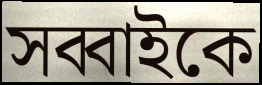
সব্বাইকে